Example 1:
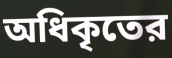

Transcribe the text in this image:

অধিকৃতের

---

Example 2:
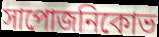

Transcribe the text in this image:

সাপোজনিকোভ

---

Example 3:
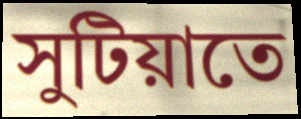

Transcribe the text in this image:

সুটিয়াতে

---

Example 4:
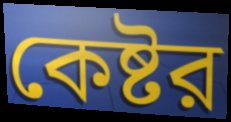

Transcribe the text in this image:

কেষ্টর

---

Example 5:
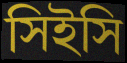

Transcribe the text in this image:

সিইসি